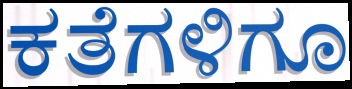
ಕತೆಗಳಿಗೂ